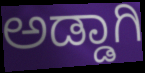
ಅಡ್ಡಾಗಿ